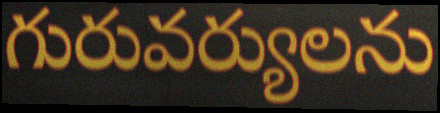
గురువర్యులను